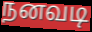
நனவடி